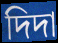
দিদা